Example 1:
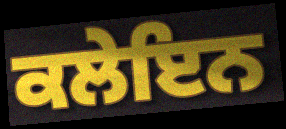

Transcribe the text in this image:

ਕਲੇਇਨ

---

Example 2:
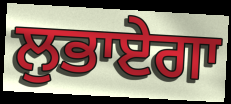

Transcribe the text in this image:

ਲੁਭਾਏਗਾ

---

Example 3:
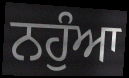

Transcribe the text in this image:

ਨਹੁੰਆ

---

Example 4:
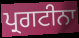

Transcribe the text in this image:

ਪ੍ਰਗਟੀਨਾ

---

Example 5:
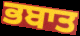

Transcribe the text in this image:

ਭਬਾਤ